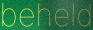
beheld